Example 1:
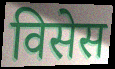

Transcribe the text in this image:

विसेस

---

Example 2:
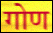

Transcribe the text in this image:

गोण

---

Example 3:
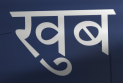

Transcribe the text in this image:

खुब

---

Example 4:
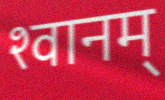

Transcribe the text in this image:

श्वानम्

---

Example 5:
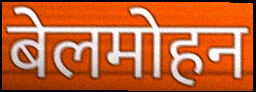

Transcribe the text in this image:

बेलमोहन